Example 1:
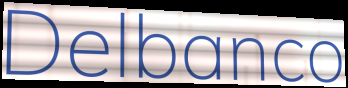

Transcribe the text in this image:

Delbanco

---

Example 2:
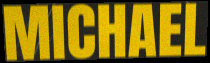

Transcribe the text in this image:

MICHAEL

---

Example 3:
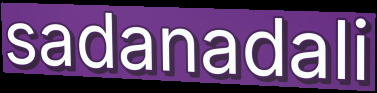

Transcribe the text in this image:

sadanadali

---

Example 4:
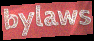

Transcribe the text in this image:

bylaws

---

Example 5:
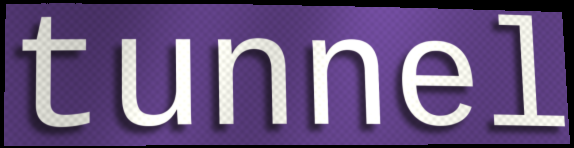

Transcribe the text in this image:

tunnel